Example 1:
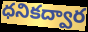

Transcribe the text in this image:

ధనికద్వార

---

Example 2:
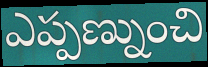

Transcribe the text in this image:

ఎప్పణ్నుంచి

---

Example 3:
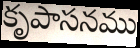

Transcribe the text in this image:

కృపాసనము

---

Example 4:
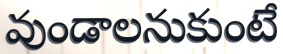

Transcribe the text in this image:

వుండాలనుకుంటే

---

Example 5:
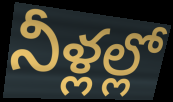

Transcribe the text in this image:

నీళ్లల్లో